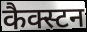
कैक्स्टन